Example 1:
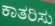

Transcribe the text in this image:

ಕಾತರಿಸು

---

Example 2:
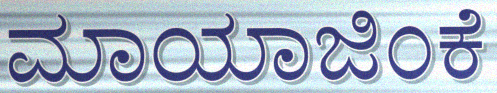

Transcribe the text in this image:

ಮಾಯಾಜಿಂಕೆ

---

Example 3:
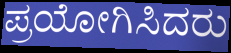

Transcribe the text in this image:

ಪ್ರಯೋಗಿಸಿದರು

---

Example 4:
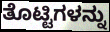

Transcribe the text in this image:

ತೊಟ್ಟಿಗಳನ್ನು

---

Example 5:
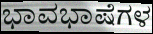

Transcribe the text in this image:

ಭಾವಭಾಷೆಗಳ